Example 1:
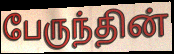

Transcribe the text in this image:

பேருந்தின்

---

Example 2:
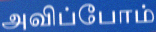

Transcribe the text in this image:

அவிப்போம்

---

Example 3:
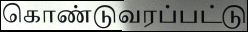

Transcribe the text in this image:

கொண்டுவரப்பட்டு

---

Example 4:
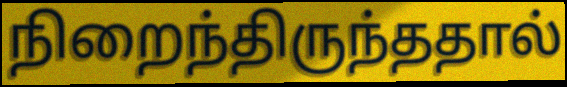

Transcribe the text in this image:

நிறைந்திருந்ததால்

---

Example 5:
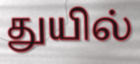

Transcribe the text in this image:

துயில்